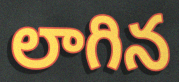
లాగిన